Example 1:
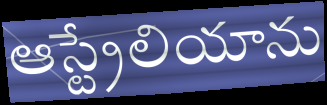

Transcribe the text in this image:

ఆస్ట్రేలియాను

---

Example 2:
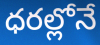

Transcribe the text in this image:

ధరల్లోనే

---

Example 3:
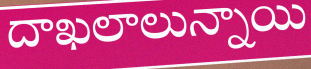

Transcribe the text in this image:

దాఖలాలున్నాయి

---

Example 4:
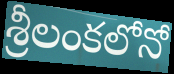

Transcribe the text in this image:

శ్రీలంకలోనో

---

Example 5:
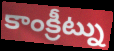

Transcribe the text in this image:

కాంక్రీట్ను